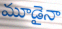
మూడైనా